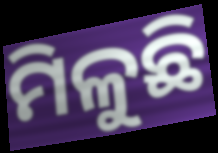
ମିଳୁଛି